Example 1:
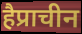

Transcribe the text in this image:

हैप्राचीन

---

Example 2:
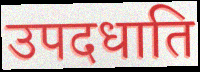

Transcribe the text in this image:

उपदधाति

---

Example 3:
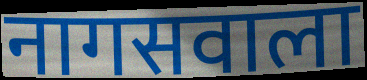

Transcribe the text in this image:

नागसवाला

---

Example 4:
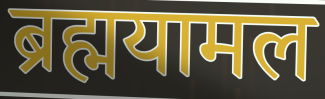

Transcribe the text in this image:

ब्रह्मयामल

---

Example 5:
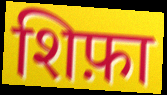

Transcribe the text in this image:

शिफ़ा